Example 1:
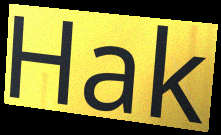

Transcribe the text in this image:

Hak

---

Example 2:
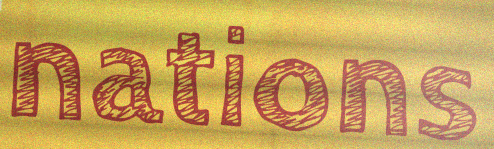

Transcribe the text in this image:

nations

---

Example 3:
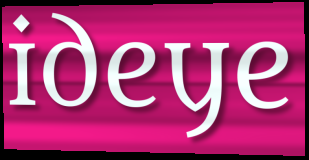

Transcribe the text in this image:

ideye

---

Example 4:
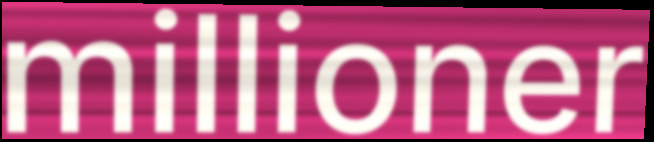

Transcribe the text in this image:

millioner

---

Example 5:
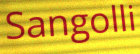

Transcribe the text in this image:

Sangolli